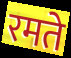
रमते